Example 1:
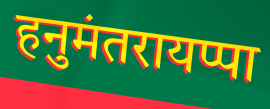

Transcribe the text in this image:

हनुमंतरायप्पा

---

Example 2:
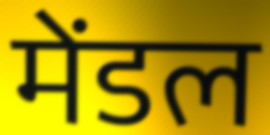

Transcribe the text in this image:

मेंडल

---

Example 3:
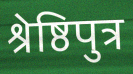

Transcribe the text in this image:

श्रेष्ठिपुत्र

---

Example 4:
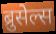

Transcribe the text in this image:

ब्रुसेल्स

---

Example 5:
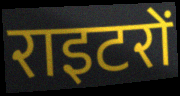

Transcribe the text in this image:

राइटरों